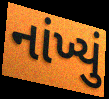
નાંખ્યું